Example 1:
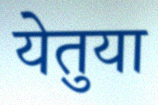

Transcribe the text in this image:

येतुया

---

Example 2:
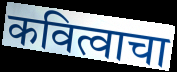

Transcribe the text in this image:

कवित्वाचा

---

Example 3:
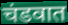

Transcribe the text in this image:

चंडवात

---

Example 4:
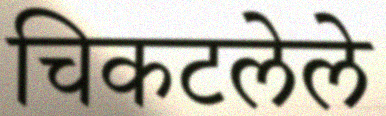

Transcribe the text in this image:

चिकटलेले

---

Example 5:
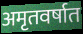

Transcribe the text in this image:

अमृतवर्षात